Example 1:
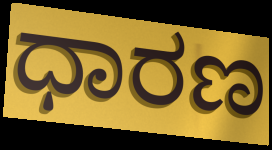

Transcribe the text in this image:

ಧಾರಣ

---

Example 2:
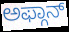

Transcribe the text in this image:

ಅಫ್ಗಾನ್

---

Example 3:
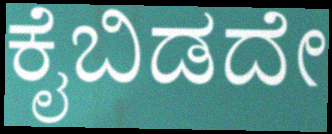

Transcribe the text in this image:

ಕೈಬಿಡದೇ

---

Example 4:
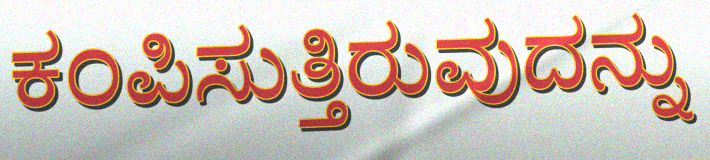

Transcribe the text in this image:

ಕಂಪಿಸುತ್ತಿರುವುದನ್ನು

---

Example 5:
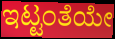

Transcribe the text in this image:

ಇಟ್ಟಂತೆಯೇ